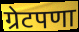
ग्रेटपणा